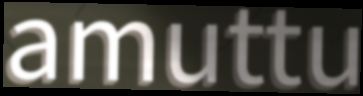
amuttu